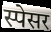
स्पेसर